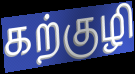
கற்குழி